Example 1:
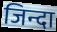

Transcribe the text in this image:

जिन्दा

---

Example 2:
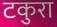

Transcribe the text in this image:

टकुरा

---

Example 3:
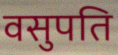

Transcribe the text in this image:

वसुपति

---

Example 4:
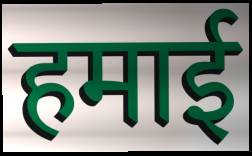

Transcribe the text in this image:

हमाई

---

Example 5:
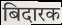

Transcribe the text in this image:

बिदारक